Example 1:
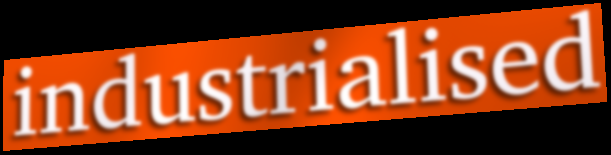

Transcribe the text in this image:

industrialised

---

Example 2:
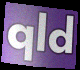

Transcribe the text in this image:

qld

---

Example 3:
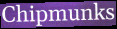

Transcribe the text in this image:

Chipmunks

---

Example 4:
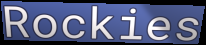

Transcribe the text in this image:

Rockies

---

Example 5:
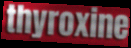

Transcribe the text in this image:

thyroxine